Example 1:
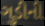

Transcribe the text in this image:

ગુડીની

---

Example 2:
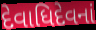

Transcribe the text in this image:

દેવાધિદેવનાં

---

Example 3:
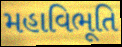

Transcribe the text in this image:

મહાવિભૂતિ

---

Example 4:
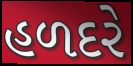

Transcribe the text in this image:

હળદરે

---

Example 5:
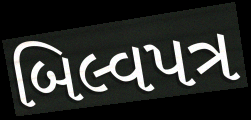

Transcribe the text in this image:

બિલ્વપત્ર